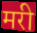
मरी